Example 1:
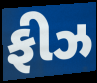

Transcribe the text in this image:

ફીઝ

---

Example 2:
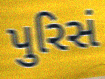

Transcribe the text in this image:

પુરિસં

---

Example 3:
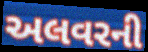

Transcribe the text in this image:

અલવરની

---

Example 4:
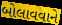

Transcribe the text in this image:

બોલાવવાને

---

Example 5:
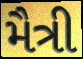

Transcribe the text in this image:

મૈત્રી